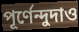
পূর্ণেন্দুদাও